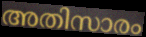
അതിസാരം